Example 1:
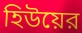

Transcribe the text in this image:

হিউয়ের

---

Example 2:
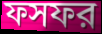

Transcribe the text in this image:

ফসফর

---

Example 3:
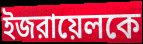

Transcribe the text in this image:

ইজরায়েলকে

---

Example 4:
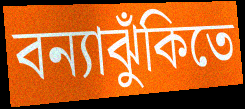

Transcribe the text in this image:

বন্যাঝুঁকিতে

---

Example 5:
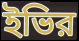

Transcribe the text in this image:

ইভির